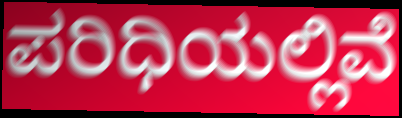
ಪರಿಧಿಯಲ್ಲಿವೆ